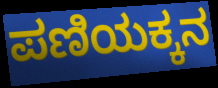
ಪಣಿಯಕ್ಕನ